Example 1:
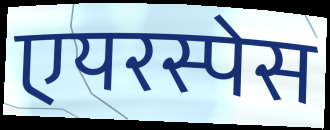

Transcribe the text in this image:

एयरस्पेस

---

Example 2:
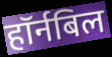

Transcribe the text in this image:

हॉर्नबिल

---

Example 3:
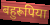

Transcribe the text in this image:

बहुरूपिया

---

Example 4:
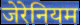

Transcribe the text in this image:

जेरेनियम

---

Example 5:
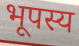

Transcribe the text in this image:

भूपस्य